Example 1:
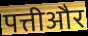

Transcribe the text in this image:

पत्तीऔर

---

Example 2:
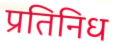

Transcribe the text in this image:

प्रतिनिध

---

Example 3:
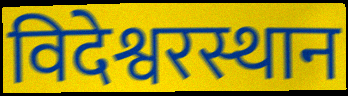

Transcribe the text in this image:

विदेश्वरस्थान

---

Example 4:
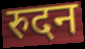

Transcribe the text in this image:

रुदन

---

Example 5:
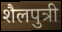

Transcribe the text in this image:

शैलपुत्री